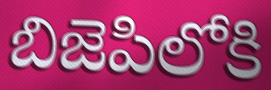
బిజెపిలోకి